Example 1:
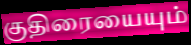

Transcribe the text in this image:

குதிரையையும்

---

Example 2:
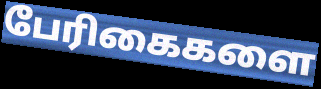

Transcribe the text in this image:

பேரிகைகளை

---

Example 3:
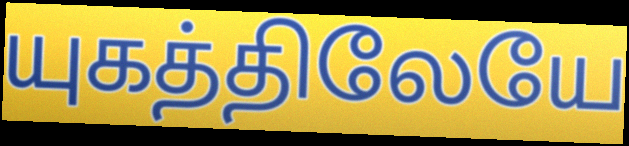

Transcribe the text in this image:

யுகத்திலேயே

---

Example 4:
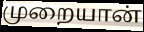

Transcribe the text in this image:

முறையான்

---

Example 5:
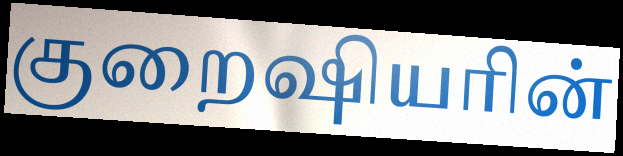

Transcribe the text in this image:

குறைஷியரின்